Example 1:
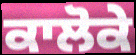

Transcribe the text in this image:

ਕਾਲੋਕੇ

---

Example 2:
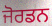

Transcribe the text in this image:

ਜੋਰਡਨ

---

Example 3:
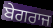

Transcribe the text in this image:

ਬੇਗਰਾਜ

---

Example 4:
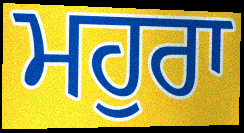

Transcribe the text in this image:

ਮਹੁਰਾ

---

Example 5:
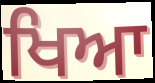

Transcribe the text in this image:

ਖਿਆ